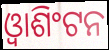
ଓ୍ୱାଶିଂଟନ